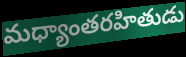
మధ్యాంతరహితుడు